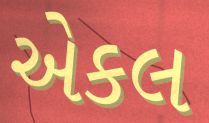
એકલ